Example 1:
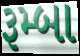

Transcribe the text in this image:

રૂમ્બા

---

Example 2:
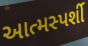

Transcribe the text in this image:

આત્મસ્પર્શી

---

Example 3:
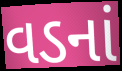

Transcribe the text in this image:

વડનાં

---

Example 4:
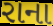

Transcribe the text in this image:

રાના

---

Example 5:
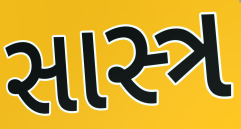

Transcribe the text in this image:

સાસ્ત્ર